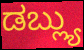
ಡಬ್ಲ್ಯು